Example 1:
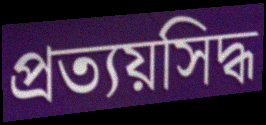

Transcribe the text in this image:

প্রত্যয়সিদ্ধ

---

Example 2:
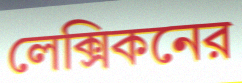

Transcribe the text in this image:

লেক্সিকনের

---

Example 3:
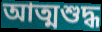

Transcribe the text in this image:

আত্মশুদ্ধ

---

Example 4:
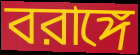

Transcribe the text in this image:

বরাঙ্গে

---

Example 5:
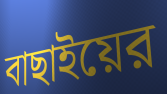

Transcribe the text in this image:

বাছাইয়ের